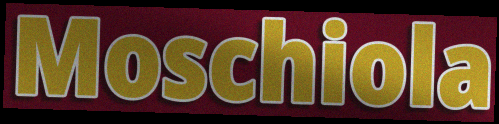
Moschiola